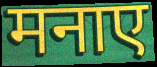
मनाए